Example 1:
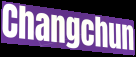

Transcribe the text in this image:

Changchun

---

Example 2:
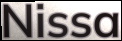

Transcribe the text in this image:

Nissa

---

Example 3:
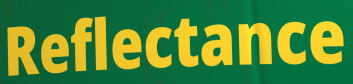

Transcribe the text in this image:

Reflectance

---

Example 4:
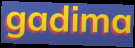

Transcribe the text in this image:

gadima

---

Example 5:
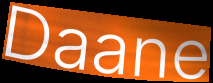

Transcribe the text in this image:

Daane